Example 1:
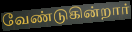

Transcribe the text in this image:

வேண்டுகின்றார்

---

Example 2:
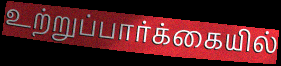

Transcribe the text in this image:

உற்றுப்பார்க்கையில்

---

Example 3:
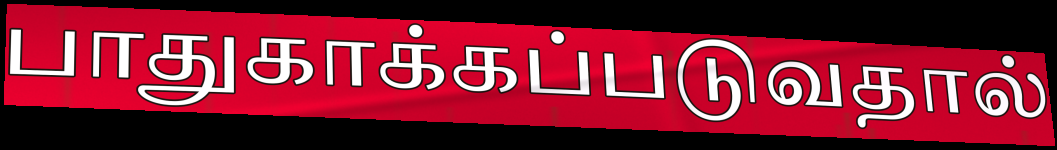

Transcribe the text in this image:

பாதுகாக்கப்படுவதால்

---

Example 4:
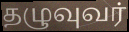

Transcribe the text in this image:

தழுவுவர்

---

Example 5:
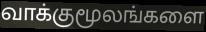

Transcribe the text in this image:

வாக்குமூலங்களை